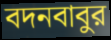
বদনবাবুর